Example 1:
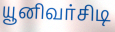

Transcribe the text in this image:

யூனிவர்சிடி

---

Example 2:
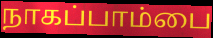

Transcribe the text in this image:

நாகப்பாம்பை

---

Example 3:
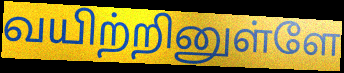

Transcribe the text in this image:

வயிற்றினுள்ளே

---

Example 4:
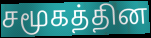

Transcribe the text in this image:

சமூகத்தின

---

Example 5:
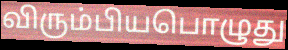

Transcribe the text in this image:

விரும்பியபொழுது